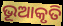
ଭୂଆକୃତି